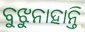
ବୁଝୁନାହାନ୍ତି